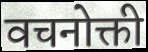
वचनोक्ती